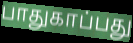
பாதுகாப்பது